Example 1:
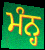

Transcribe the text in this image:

ਮੰਨ੍ਹ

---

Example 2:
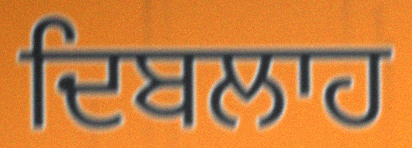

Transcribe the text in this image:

ਦਿਬਲਾਹ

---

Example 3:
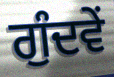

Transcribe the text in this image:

ਗੁੰਦਵੇਂ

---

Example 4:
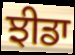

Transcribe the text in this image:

ਝੀਡਾ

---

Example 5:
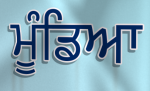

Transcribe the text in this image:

ਮੂੰਡਿਆ